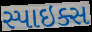
સ્પાઇક્સ